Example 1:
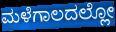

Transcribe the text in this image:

ಮಳೆಗಾಲದಲ್ಲೋ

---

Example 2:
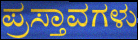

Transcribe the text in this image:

ಪ್ರಸ್ತಾವಗಳು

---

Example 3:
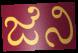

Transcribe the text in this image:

ಜೆನಿ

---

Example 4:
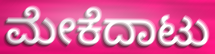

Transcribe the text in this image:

ಮೇಕೆದಾಟು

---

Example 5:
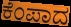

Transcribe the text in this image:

ಕೆಂಪಾದ